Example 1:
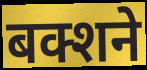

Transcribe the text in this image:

बक्शने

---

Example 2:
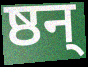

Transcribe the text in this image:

ष्ठन्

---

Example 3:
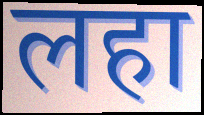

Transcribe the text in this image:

लहा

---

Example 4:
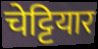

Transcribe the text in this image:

चेट्टियार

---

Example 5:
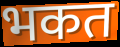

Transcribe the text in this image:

भकत